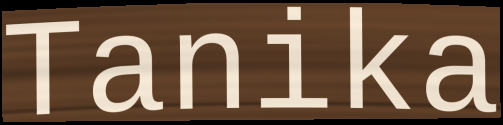
Tanika